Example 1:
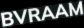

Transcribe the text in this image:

BVRAAM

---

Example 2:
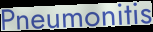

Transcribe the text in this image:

Pneumonitis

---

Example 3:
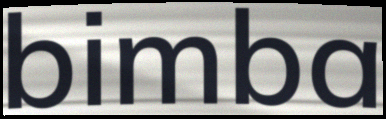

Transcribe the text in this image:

bimba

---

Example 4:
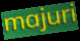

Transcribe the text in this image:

majuri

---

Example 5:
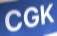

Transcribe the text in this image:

CGK